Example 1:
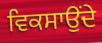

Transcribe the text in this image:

ਵਿਕਸਾਉਂਦੇ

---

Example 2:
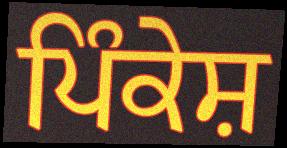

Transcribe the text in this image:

ਪਿੰਕੇਸ਼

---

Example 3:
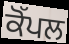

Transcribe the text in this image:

ਕੋੱਪਲ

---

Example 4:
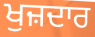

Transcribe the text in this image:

ਖੁਜ਼ਦਾਰ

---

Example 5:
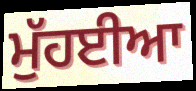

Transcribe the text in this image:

ਮੁੱਹਈਆ